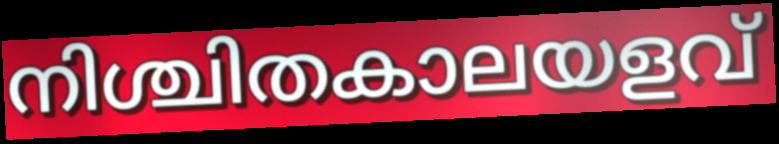
നിശ്ചിതകാലയളവ്